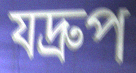
যদ্রুপ